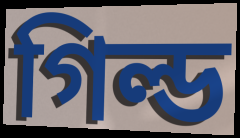
গিল্ড